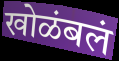
खोळंबलं